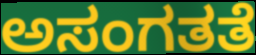
ಅಸಂಗತತೆ